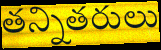
తన్నితరులు